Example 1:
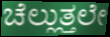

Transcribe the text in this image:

ಚೆಲ್ಲುತ್ತಲೇ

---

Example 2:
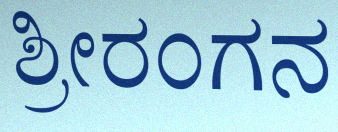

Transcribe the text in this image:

ಶ್ರೀರಂಗನ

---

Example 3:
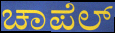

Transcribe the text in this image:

ಚಾಪೆಲ್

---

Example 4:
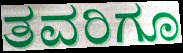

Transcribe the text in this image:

ತವರಿಗೂ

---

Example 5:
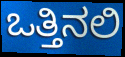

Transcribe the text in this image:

ಒತ್ತಿನಲಿ